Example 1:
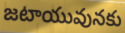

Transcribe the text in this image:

జటాయువునకు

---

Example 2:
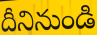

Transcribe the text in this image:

దీనినుండి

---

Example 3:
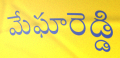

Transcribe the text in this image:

మేఘారెడ్డి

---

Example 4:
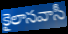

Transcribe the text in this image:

కైలాసవాసీ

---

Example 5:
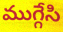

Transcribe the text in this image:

ముగ్గేసి